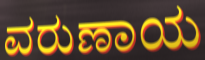
ವರುಣಾಯ